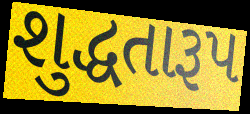
શુદ્ધતારૂપ